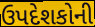
ઉપદેશકોની